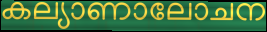
കല്യാണാലോചന